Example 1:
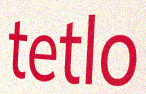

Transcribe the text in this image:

tetlo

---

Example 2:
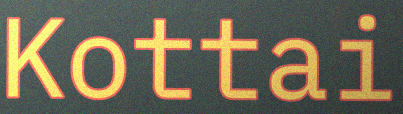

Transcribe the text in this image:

Kottai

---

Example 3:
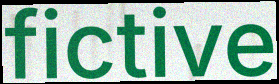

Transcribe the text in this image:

fictive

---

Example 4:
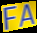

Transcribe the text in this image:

FA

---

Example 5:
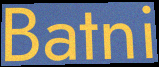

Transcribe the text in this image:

Batni